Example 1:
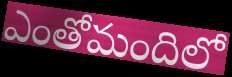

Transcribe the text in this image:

ఎంతోమందిలో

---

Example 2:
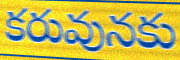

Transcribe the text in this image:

కరువునకు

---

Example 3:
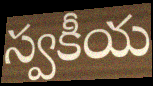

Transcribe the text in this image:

స్వకీయ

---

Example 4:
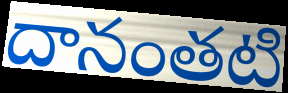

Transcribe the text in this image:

దానంతటి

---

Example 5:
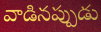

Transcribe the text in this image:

వాడినప్పుడు